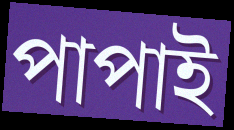
পাপাই